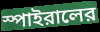
স্পাইরালের